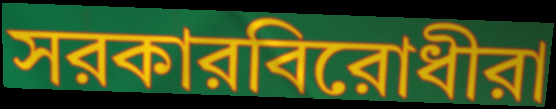
সরকারবিরোধীরা